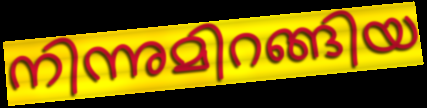
നിന്നുമിറങ്ങിയ